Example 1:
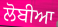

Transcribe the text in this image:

ਲੋਬੀਆ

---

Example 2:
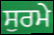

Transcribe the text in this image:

ਸੁਰਮੇ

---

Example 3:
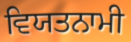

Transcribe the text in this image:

ਵਿਯਤਨਾਮੀ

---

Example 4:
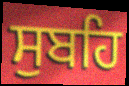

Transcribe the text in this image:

ਸੁਬਹਿ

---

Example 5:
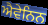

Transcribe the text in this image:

ਐਵੇਨਿਨ